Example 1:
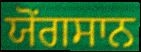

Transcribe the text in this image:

ਯੋਂਗਸਾਨ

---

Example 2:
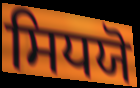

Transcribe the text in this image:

ਸਿਧਯੋ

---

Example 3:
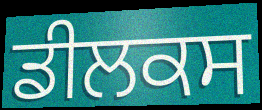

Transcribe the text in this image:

ਡੀਲਕਸ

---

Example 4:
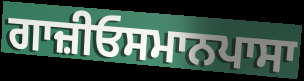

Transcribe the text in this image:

ਗਾਜ਼ੀਓਸਮਾਨਪਾਸਾ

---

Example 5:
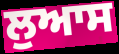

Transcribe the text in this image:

ਲੁਆਸ